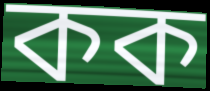
কক